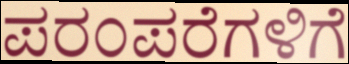
ಪರಂಪರೆಗಳಿಗೆ